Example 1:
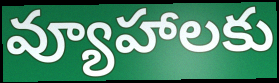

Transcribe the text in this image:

వ్యూహాలకు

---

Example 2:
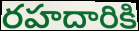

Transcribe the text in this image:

రహదారికి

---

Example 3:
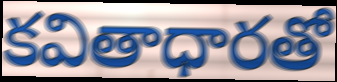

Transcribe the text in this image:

కవితాధారతో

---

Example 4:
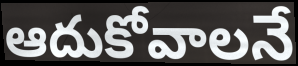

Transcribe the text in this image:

ఆదుకోవాలనే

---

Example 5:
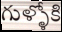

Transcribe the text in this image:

గుళ్ళోకి